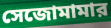
সেজোমামার